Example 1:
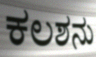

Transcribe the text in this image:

ಕಲಶನು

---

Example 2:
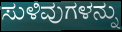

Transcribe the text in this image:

ಸುಳಿವುಗಳನ್ನು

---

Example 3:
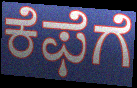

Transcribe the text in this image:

ಕೆಫೆಗೆ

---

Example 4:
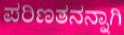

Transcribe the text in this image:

ಪರಿಣತನನ್ನಾಗಿ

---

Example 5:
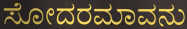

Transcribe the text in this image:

ಸೋದರಮಾವನು